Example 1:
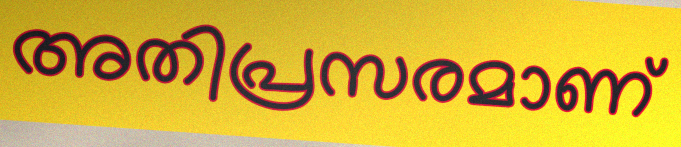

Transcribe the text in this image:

അതിപ്രസരമാണ്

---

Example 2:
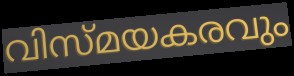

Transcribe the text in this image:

വിസ്മയകരവും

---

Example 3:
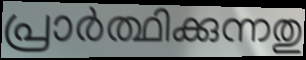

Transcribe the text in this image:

പ്രാർത്ഥിക്കുന്നതു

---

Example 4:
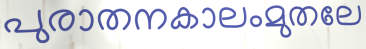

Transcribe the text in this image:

പുരാതനകാലംമുതലേ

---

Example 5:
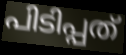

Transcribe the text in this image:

പിടിപ്പത്